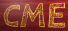
CME